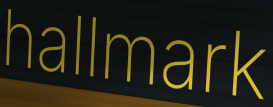
hallmark